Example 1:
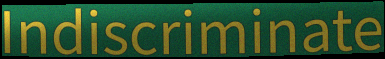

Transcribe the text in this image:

Indiscriminate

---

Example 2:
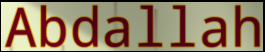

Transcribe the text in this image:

Abdallah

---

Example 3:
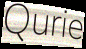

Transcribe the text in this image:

Qurie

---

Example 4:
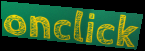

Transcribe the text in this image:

onclick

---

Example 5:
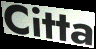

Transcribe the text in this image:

Citta